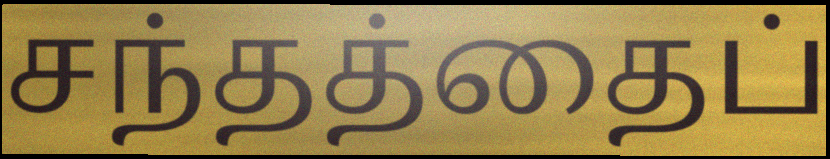
சந்தத்தைப்